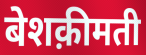
बेशक़ीमती